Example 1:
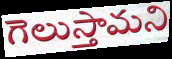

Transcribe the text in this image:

గెలుస్తామని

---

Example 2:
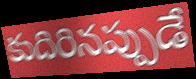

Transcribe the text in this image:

కుదిరినప్పుడే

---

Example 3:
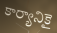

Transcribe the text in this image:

కార్యానికై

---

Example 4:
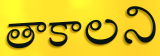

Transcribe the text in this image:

తాకాలని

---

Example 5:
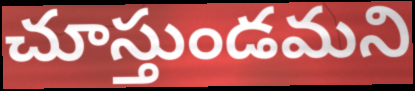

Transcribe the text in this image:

చూస్తుండమని